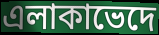
এলাকাভেদে